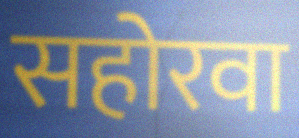
सहोरवा